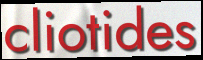
cliotides